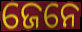
ଜେନେ